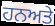
ਹਨਅਤੇ